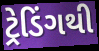
ટ્રેડિંગથી